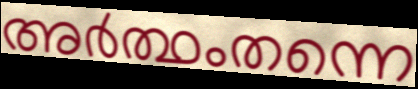
അർത്ഥംതന്നെ